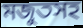
মজুতসহ